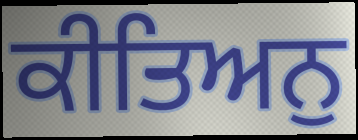
ਕੀਤਿਅਨੁ